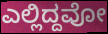
ಎಲ್ಲಿದ್ದವೋ